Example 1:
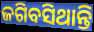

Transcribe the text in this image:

ଜଗିବସିଥାନ୍ତି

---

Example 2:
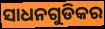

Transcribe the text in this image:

ସାଧନଗୁଡିକର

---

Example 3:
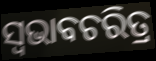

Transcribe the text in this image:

ସ୍ବଭାବଚରିତ୍ର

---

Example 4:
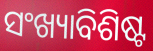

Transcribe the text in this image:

ସଂଖ୍ୟାବିଶିଷ୍ଟ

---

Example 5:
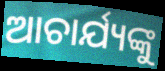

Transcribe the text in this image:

ଆଚାର୍ଯ୍ୟଙ୍କୁ